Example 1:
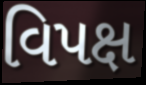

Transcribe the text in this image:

વિપક્ષ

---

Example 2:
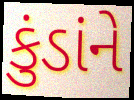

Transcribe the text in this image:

કુંડાંને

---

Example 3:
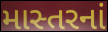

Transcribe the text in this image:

માસ્તરનાં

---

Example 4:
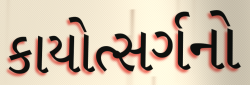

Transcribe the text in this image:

કાયોત્સર્ગનો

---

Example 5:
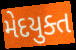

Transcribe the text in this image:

મેદયુક્ત